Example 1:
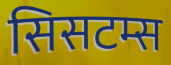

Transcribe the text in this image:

सिसटम्स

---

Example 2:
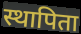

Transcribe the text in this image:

स्थापिता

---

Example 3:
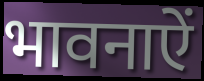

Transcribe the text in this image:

भावनाऐं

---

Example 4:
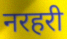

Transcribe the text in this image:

नरहरी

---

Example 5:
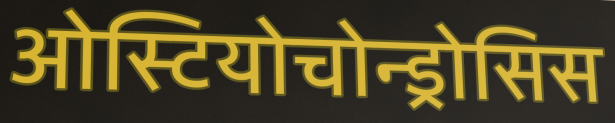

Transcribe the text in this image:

ओस्टियोचोन्ड्रोसिस